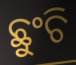
ଛୁଂଚି